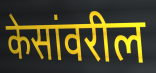
केसांवरील